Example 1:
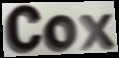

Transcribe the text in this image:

Cox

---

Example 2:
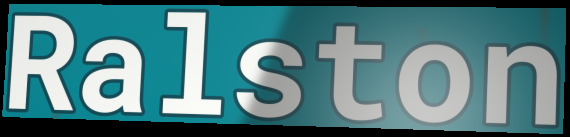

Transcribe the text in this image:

Ralston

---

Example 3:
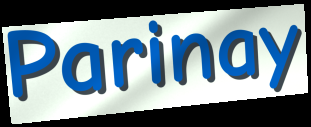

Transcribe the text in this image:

Parinay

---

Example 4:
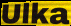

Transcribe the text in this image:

Ulka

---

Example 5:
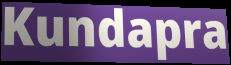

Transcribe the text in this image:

Kundapra